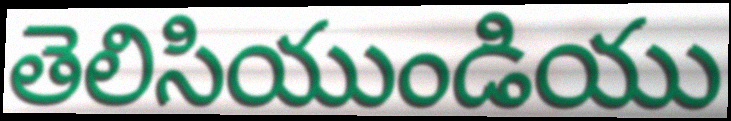
తెలిసియుండియు